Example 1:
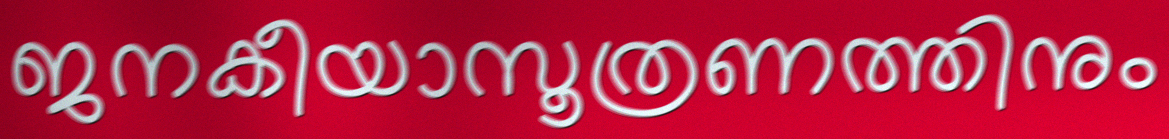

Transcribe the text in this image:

ജനകീയാസൂത്രണത്തിനും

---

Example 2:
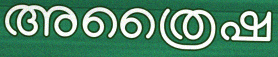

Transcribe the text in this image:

അത്രൈഷ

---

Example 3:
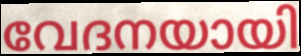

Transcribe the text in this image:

വേദനയായി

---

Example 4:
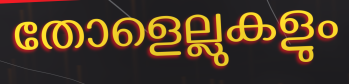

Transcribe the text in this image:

തോളെല്ലുകളും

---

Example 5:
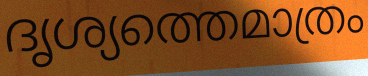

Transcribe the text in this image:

ദൃശ്യത്തെമാത്രം